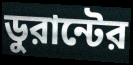
ডুরান্টের